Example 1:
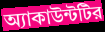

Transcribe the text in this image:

অ্যাকাউন্টটির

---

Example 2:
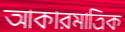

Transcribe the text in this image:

আকারমাত্রিক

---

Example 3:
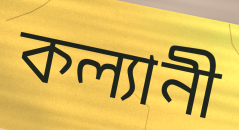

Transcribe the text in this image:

কল্যানী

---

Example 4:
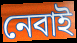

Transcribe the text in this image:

নেবাই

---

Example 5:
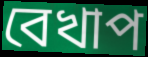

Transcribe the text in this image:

বেখাপ